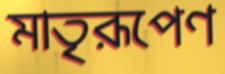
মাতৃরূপেণ